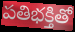
పతిభక్తితో